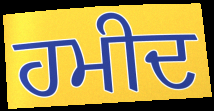
ਹਮੀਦ